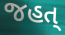
જહત્